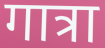
गात्रा